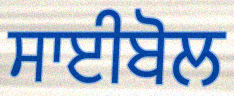
ਸਾਈਬੋਲ